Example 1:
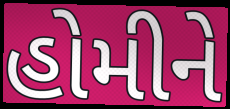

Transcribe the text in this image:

હોમીને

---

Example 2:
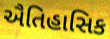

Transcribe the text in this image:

ઐતિહાસિક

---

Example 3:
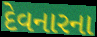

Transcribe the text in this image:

દેવનારના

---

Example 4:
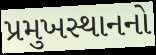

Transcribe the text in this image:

પ્રમુખસ્થાનનો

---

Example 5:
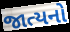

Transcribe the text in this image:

જાત્યનો